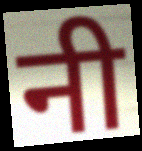
नी